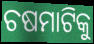
ଚଷମାଟିକୁ